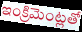
ఇంక్రిమెంట్లతో